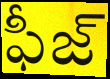
ఫీజ్